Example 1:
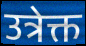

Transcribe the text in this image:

उत्रेक्त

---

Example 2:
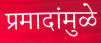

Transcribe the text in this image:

प्रमादांमुळे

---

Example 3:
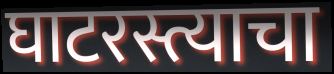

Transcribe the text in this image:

घाटरस्त्याचा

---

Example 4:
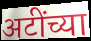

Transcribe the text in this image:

अटींच्या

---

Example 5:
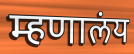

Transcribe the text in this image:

म्हणालंय